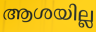
ആശയില്ല